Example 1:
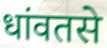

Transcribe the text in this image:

धांवतसे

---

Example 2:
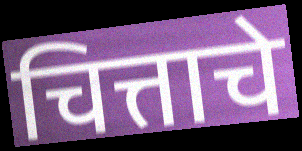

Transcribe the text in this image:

चित्ताचे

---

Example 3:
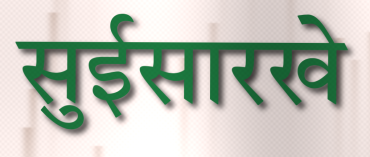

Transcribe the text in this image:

सुईसारखे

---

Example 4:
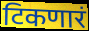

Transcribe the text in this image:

टिकणारं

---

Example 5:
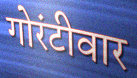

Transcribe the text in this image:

गोरंटीवार